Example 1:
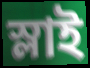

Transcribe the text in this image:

স্লাই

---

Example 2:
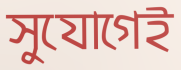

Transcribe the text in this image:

সুযোগেই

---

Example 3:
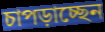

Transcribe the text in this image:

চাপড়াচ্ছেন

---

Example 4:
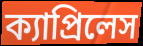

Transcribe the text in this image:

ক্যাপ্রিলেস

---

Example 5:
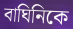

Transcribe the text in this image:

বাঘিনিকে